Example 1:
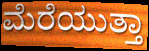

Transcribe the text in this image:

ಮೆರೆಯುತ್ತಾ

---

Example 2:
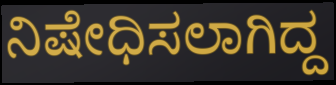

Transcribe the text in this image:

ನಿಷೇಧಿಸಲಾಗಿದ್ದ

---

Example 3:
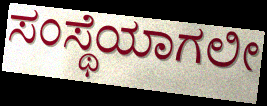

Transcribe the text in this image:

ಸಂಸ್ಥೆಯಾಗಲೀ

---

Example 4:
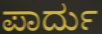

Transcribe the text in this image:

ಪಾರ್ದು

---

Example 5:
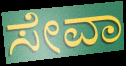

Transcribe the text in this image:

ಸೇವಾ